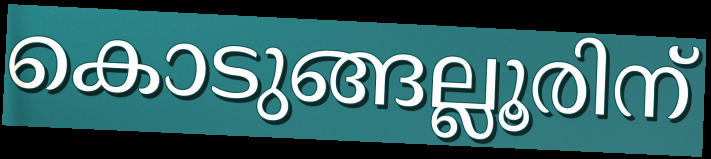
കൊടുങ്ങല്ലൂരിന്